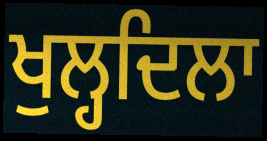
ਖੁਲ੍ਹਦਿਲਾ